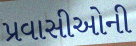
પ્રવાસીઓની